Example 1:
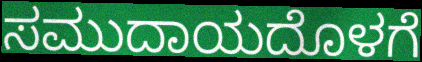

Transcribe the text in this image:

ಸಮುದಾಯದೊಳಗೆ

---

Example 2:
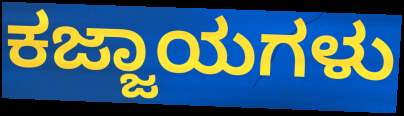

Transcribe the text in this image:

ಕಜ್ಜಾಯಗಳು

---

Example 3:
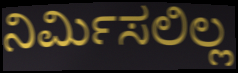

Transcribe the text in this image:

ನಿರ್ಮಿಸಲಿಲ್ಲ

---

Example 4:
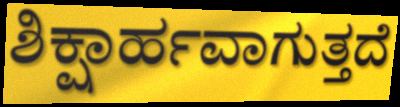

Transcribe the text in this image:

ಶಿಕ್ಷಾರ್ಹವಾಗುತ್ತದೆ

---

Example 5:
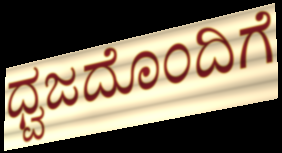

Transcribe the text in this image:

ಧ್ವಜದೊಂದಿಗೆ